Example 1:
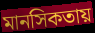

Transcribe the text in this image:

মানসিকতায়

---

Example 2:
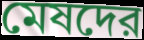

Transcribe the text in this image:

মেষদের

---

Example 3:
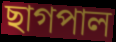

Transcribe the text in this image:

ছাগপাল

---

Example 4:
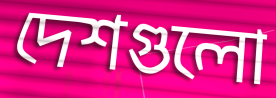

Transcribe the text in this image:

দেশগুলো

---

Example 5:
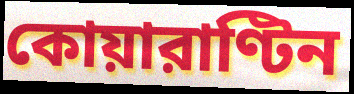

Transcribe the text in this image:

কোয়ারাণ্টিন